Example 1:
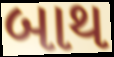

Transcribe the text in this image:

બાથ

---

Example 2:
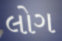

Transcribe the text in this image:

લોગ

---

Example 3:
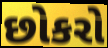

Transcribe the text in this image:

છોકરો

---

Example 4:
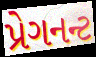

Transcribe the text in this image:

પ્રેગનન્ટ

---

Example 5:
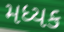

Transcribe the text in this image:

મધ્યક